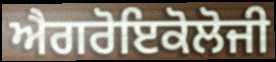
ਐਗਰੋਇਕੋਲੋਜੀ